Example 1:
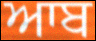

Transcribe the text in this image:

ਆਬ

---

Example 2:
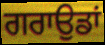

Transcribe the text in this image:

ਗਰਾਉਡਾਂ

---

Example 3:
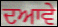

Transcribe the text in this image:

ਦਆਵੇ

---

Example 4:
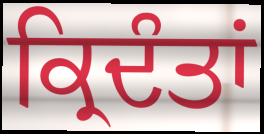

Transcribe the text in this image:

ਕ੍ਰਿਦੰਤਾਂ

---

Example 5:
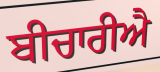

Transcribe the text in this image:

ਬੀਚਾਰੀਐ